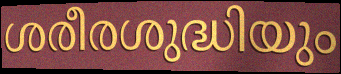
ശരീരശുദ്ധിയും